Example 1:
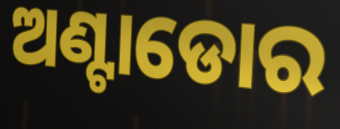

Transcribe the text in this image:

ଅଣ୍ଟାଡୋର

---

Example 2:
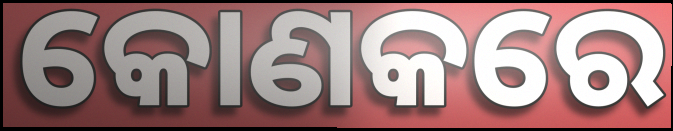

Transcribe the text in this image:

କୋଣକରେ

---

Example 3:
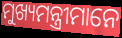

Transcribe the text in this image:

ମୁଖ୍ୟମନ୍ତ୍ରୀମାନେ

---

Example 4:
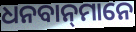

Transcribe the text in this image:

ଧନବାନ୍‍ମାନେ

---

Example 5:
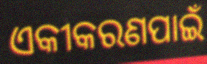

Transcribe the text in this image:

ଏକୀକରଣପାଇଁ